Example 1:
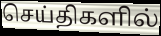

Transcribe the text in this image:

செய்திகளில்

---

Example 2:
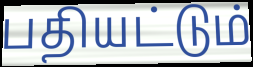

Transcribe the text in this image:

பதியட்டும்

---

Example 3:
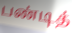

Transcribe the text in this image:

பண்டித்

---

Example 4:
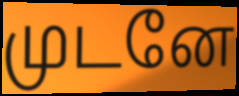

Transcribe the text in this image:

முடனே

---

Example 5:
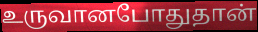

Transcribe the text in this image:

உருவானபோதுதான்